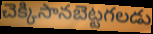
చెక్కిసానబెట్టగలడు